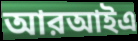
আরআইএ